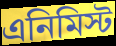
এনিমিস্ট